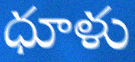
ధూళు